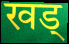
खड्